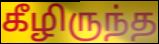
கீழிருந்த